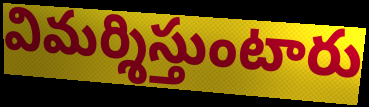
విమర్శిస్తుంటారు